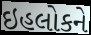
ઇહલોકને